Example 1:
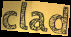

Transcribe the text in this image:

clad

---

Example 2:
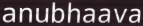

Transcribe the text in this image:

anubhaava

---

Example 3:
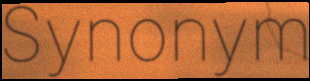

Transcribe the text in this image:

Synonym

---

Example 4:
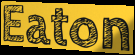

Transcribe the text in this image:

Eaton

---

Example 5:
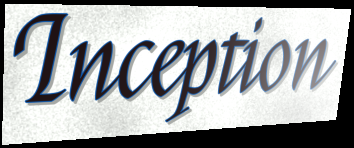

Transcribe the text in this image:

Inception